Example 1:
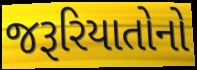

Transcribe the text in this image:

જરૂરિયાતોનો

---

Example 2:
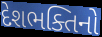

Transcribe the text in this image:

દેશભક્તિનો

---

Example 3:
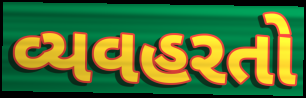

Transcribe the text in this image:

વ્યવહરતો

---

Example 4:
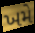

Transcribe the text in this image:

ખમે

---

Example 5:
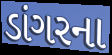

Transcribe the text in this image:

ડાંગરના